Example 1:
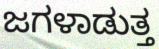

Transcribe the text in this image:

ಜಗಳಾಡುತ್ತ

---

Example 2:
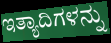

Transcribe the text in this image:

ಇತ್ಯಾದಿಗಳನ್ನು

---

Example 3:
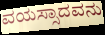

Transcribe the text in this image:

ವಯಸ್ಸಾದವನು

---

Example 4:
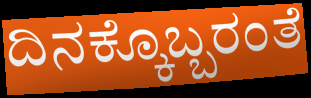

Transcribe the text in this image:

ದಿನಕ್ಕೊಬ್ಬರಂತೆ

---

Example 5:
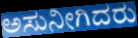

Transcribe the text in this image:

ಅಸುನೀಗಿದರು